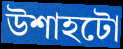
উশাহটো